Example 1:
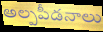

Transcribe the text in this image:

అల్పపీడనాలు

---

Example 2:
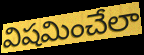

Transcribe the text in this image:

విషమించేలా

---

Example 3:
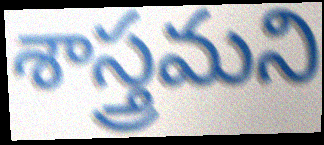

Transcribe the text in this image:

శాస్త్రమని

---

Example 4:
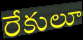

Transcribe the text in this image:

రేకులూ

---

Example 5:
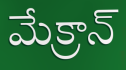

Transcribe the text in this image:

మేక్రాన్